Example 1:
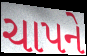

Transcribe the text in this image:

ચાપને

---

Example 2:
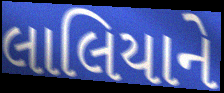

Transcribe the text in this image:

લાલિયાને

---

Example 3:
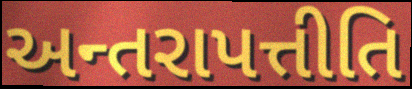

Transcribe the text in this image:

અન્તરાપત્તીતિ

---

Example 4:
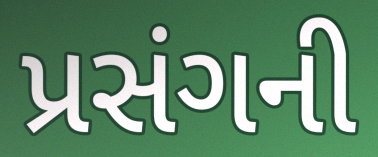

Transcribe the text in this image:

પ્રસંગની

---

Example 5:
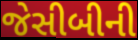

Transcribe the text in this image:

જેસીબીની